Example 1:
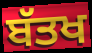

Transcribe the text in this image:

ਬੱਤਖ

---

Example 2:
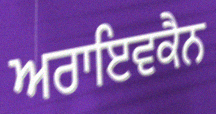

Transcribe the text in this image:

ਅਰਾਇਵਕੈਨ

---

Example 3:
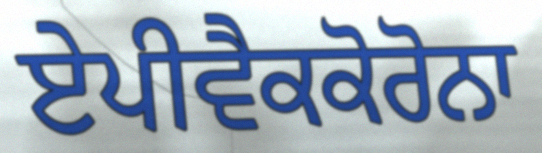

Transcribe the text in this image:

ਏਪੀਵੈਕਕੋਰੋਨਾ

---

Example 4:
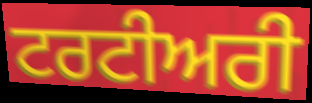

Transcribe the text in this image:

ਟਰਟੀਅਰੀ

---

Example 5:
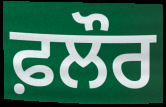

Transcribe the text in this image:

ਫ਼ਲੌਰ